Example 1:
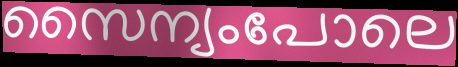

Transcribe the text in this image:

സൈന്യംപോലെ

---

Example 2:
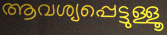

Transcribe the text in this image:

ആവശ്യപ്പെട്ടുള്ളൂ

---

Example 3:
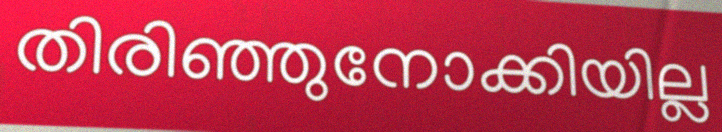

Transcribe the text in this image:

തിരിഞ്ഞുനോക്കിയില്ല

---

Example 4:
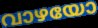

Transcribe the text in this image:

വാഴയോ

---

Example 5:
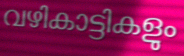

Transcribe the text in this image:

വഴികാട്ടികളും